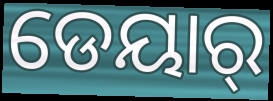
ଡେୟାର୍